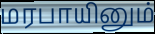
மரபாயினும்